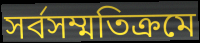
সর্বসম্মতিক্রমে